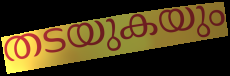
തടയുകയും